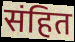
संहित